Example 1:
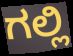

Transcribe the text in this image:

ಗಲ್ಲಿ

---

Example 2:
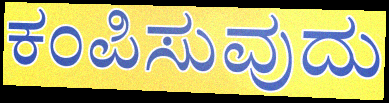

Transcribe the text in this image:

ಕಂಪಿಸುವುದು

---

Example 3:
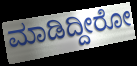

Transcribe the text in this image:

ಮಾಡಿದ್ದೀರೋ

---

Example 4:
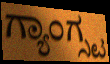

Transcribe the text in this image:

ಗ್ಯಾಂಗ್ಸ್ಟ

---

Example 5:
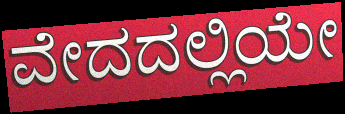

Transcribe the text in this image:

ವೇದದಲ್ಲಿಯೇ